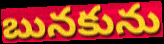
బునకును